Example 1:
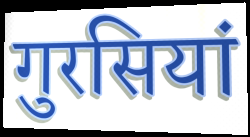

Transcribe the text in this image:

गुरसियां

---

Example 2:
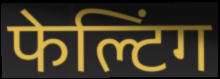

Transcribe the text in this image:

फेल्टिंग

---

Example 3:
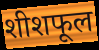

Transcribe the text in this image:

शीशफूल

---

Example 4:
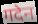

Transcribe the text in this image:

गदेन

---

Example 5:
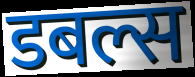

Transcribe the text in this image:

डबल्‍स